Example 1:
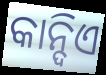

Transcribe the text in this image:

କାନ୍ଦିଏ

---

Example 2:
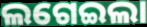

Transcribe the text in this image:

ଲଗେଇଲା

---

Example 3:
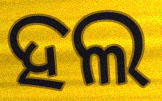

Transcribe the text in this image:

ହଲ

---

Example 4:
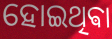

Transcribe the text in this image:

ହୋଇଥିଵା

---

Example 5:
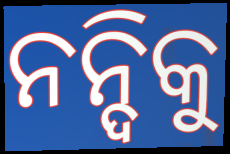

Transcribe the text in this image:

ନନ୍ଦିକୁ